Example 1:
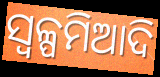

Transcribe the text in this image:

ସ୍ବଳ୍ପମିଆଦି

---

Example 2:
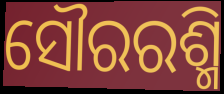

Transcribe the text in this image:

ସୌରରଶ୍ମି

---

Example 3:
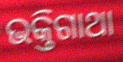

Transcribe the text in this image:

ଭକ୍ତିଗାଥା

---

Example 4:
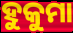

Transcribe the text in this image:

ହୁକୁମା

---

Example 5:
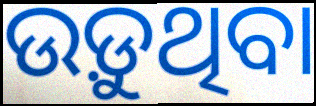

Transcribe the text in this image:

ଉଡ଼ୁଥିବା